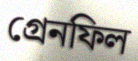
গ্রেনফিল